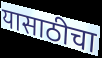
यासाठीचा